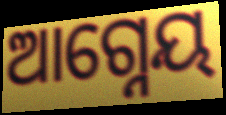
ଆଗ୍ନେୟ